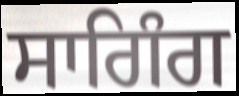
ਸਾਗਿੰਗ